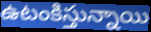
ఉటంకిస్తున్నాయి